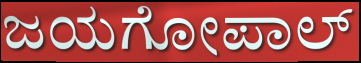
ಜಯಗೋಪಾಲ್